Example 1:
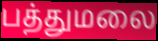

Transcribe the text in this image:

பத்துமலை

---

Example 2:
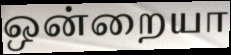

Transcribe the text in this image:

ஒன்றையா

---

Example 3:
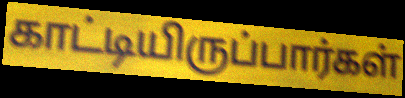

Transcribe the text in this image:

காட்டியிருப்பார்கள்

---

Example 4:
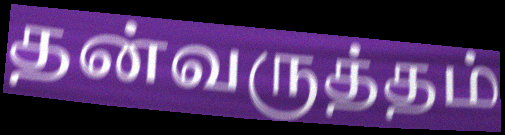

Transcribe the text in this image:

தன்வருத்தம்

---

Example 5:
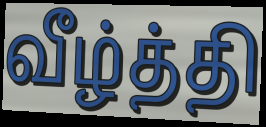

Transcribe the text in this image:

வீழ்த்தி